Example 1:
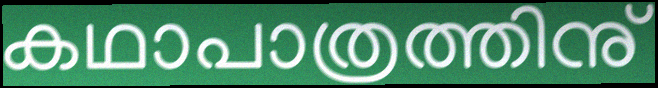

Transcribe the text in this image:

കഥാപാത്രത്തിനു്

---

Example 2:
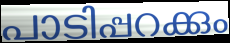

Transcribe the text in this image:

പാടിപ്പറക്കും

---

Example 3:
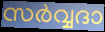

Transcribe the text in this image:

സർവ്വദാ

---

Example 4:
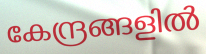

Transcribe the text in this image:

കേന്ദ്രങ്ങളിൽ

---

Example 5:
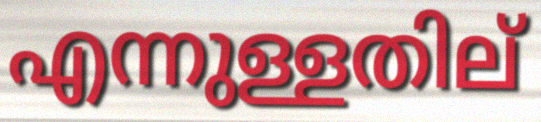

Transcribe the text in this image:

എന്നുള്ളതില്